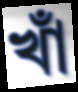
খাঁ